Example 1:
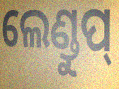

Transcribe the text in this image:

ଲେଣ୍ଡୁପ୍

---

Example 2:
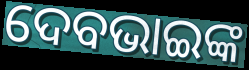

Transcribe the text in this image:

ଦେବଭାଇଙ୍କ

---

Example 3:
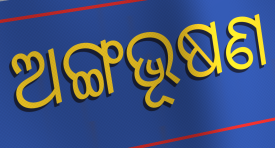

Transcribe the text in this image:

ଅଙ୍ଗଭୂଷଣ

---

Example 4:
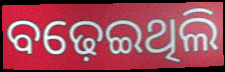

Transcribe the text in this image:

ବଢ଼େଇଥିଲି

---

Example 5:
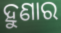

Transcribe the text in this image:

ହୁଣାର